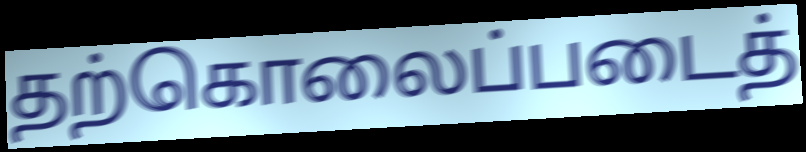
தற்கொலைப்படைத்